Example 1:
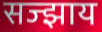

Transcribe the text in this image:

सज्झाय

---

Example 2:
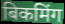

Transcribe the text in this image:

बिकमिंग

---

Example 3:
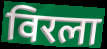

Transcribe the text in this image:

विरला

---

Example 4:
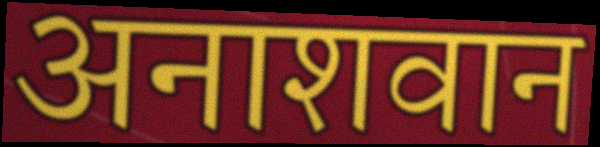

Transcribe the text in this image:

अनाशवान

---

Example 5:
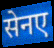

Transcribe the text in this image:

सेनए